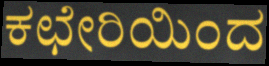
ಕಛೇರಿಯಿಂದ